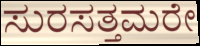
ಸುರಸತ್ತಮರೇ